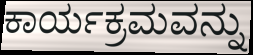
ಕಾರ್ಯಕ್ರಮವನ್ನು